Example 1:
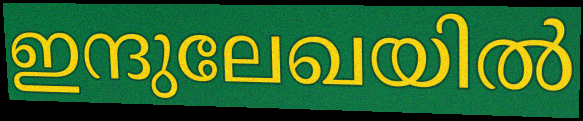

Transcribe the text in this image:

ഇന്ദുലേഖയിൽ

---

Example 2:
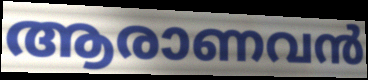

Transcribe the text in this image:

ആരാണവൻ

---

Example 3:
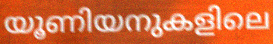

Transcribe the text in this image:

യൂണിയനുകളിലെ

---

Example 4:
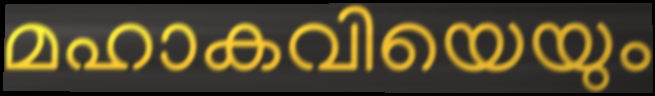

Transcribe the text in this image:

മഹാകവിയെയും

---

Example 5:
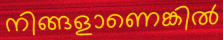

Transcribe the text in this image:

നിങ്ങളാണെങ്കിൽ